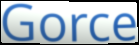
Gorce